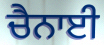
ਚੈਨਾਈ